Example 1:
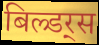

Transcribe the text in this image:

बिल्डर्स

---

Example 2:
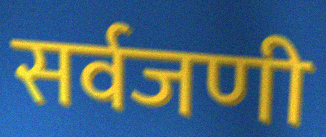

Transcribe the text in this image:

सर्वजणी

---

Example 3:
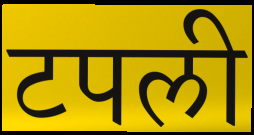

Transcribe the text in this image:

टपली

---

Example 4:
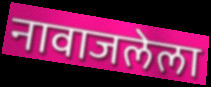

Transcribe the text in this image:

नावाजलेला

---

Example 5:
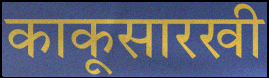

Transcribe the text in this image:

काकूसारखी